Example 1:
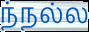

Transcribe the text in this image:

ந்நல்ல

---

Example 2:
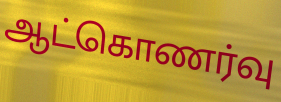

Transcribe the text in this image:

ஆட்கொணர்வு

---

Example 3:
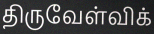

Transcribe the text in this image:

திருவேள்விக்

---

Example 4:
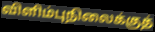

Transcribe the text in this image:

விளிம்புநிலைக்குத்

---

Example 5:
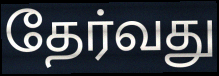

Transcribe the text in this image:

தேர்வது